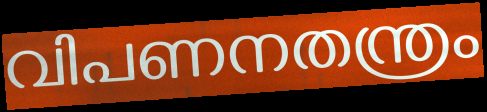
വിപണനതന്ത്രം